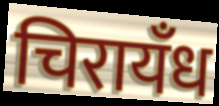
चिरायँध